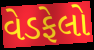
વેડફેલો